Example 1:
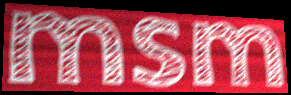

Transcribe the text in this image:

msm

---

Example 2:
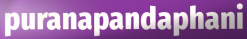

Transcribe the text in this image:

puranapandaphani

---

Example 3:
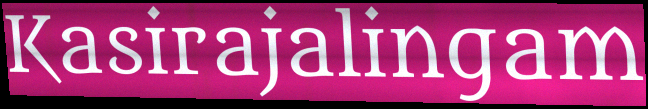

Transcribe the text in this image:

Kasirajalingam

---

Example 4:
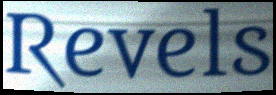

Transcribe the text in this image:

Revels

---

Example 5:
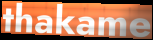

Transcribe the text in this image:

thakame